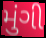
મુંગી